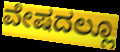
ವೇಷದಲ್ಲೂ